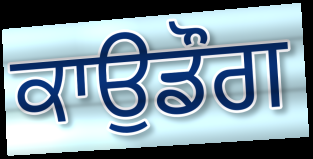
ਕਾਉਡੌਗ